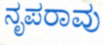
ನೃಪರಾವು